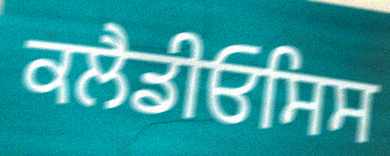
ਕਲੈਡੀਓਸਿਸ